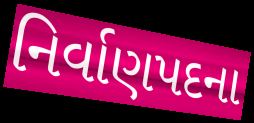
નિર્વાણપદના